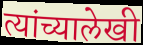
त्यांच्यालेखी